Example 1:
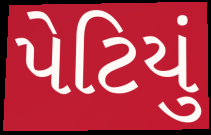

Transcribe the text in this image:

પેટિયું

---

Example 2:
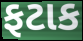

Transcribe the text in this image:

ફટાક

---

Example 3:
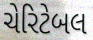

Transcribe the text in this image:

ચેરિટેબલ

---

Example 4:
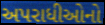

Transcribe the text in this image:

અપરાધીઓનો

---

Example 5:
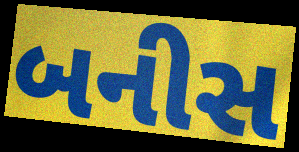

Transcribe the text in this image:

બનીસ